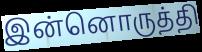
இன்னொருத்தி